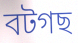
বটগছ